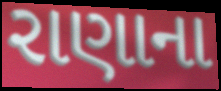
રાણાના